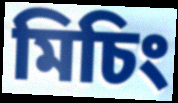
মিচিং